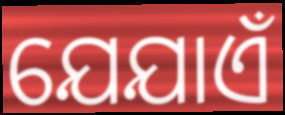
ଯେଯାଏଁ